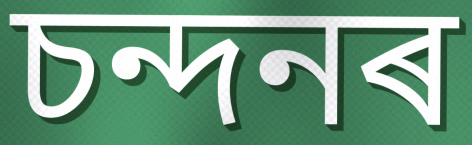
চন্দনৰ